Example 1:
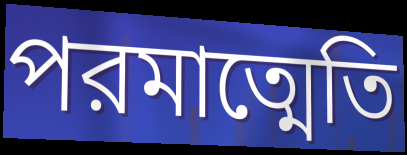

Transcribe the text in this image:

পরমাত্মেতি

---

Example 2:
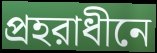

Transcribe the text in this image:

প্রহরাধীনে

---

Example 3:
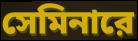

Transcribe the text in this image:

সেমিনারে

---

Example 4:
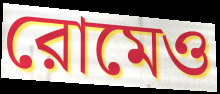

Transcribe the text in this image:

রোমেও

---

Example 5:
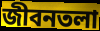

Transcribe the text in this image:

জীবনতলা